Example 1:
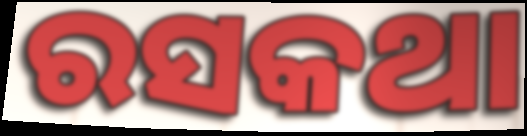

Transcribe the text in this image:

ରସକଥା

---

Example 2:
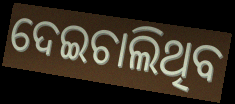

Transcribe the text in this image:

ଦେଇଚାଲିଥିବ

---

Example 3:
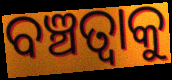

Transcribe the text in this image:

ବଞ୍ଚତ୍ବାକୁ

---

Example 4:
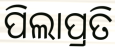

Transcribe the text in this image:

ପିଲାପ୍ରତି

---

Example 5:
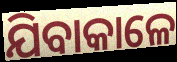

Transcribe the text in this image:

ଯିବାକାଳେ